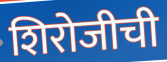
शिरोजीची